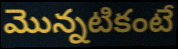
మొన్నటికంటే